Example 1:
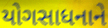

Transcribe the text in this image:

યોગસાધનાને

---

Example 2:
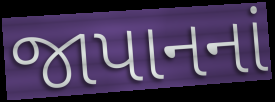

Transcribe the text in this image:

જાપાનનાં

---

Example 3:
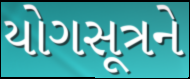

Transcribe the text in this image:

યોગસૂત્રને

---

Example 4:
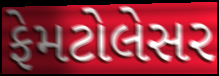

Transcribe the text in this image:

ફેમટોલેસર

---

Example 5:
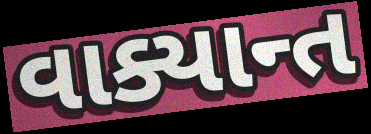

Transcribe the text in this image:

વાક્યાન્ત